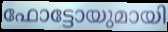
ഫോട്ടോയുമായി